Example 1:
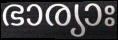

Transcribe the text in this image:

ഭാര്യാഃ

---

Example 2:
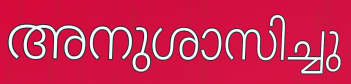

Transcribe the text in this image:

അനുശാസിച്ചു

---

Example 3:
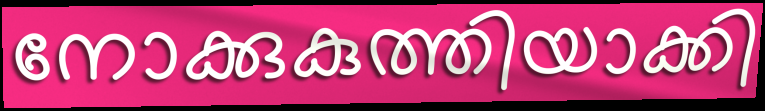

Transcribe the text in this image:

നോക്കുകുത്തിയാക്കി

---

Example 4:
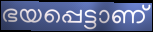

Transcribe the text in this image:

ഭയപ്പെട്ടാണ്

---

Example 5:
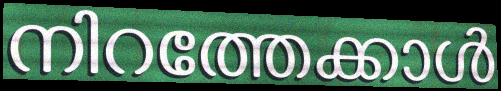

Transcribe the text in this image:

നിറത്തേക്കാൾ